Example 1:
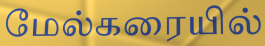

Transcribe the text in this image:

மேல்கரையில்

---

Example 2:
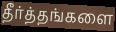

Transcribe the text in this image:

தீர்த்தங்களை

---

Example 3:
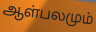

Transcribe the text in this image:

ஆள்பலமும்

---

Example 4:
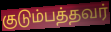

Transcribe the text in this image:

குடும்பத்தவர்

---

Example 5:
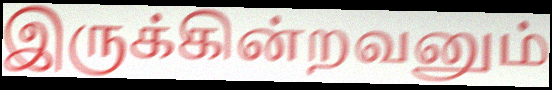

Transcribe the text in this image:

இருக்கின்றவனும்